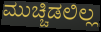
ಮುಚ್ಚಿಡಲಿಲ್ಲ